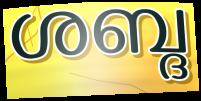
ശബ്ദ